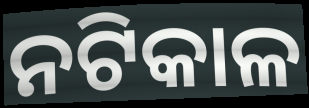
ନଟିକାଳ